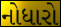
નોધારો